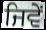
ਜਿਵੇਂ